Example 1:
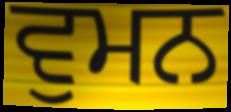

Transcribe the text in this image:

ਵੁਮਨ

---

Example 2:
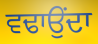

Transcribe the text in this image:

ਵਢਾਉਂਦਾ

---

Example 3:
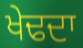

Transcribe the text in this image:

ਖੇਢਦਾ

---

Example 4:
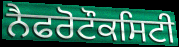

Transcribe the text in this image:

ਨੈਫਰੋਟੌਕਸਿਟੀ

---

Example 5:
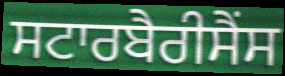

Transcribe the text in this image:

ਸਟਾਰਬੈਰੀਸੈਂਸ